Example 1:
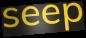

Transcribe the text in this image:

seep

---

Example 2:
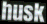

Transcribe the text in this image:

husk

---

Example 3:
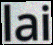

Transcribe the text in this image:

lai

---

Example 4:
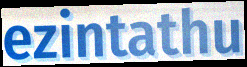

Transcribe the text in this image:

ezintathu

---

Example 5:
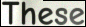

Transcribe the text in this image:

These